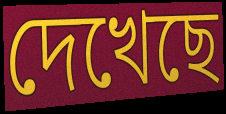
দেখেছে